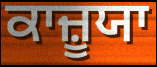
ਕਾਜ਼ੂਯਾ